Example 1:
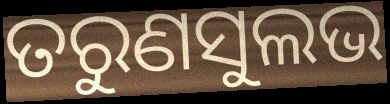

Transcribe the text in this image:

ତରୁଣସୁଲଭ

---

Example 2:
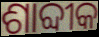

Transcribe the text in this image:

ଶାବ୍ଦୀକ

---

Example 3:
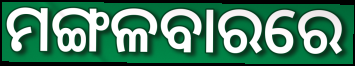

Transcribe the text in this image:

ମଙ୍ଗଳବାରରେ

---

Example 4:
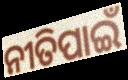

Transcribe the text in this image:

ନୀତିପାଇଁ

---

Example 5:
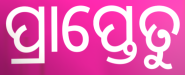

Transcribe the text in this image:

ପ୍ରାପ୍ତେତୁ